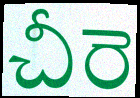
చీరె